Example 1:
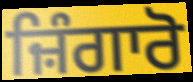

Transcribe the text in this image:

ਜ਼ਿੰਗਾਰੋ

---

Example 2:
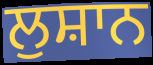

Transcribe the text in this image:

ਲੁਸ਼ਾਨ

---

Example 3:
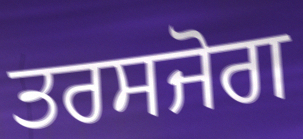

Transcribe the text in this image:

ਤਰਸਜੋਗ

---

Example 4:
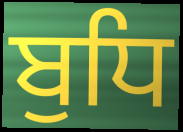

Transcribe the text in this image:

ਬੁਧਿ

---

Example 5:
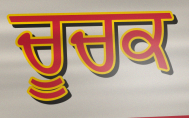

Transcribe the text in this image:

ਚੂਚਕ